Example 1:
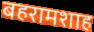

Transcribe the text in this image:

बहरामशाह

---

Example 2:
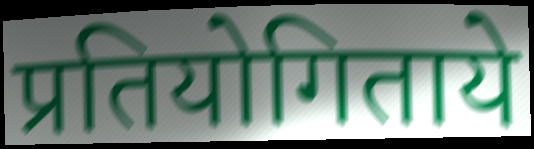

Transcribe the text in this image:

प्रतियोगिताये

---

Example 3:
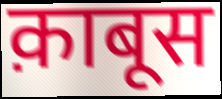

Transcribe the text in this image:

क़ाबूस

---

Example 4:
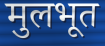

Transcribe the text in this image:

मुलभूत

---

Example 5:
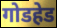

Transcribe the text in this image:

गोडहेड